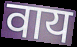
वाय